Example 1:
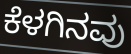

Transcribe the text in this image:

ಕೆಳಗಿನವು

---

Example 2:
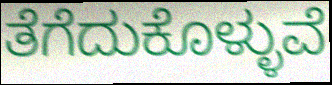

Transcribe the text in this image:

ತೆಗೆದುಕೊಳ್ಳುವೆ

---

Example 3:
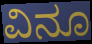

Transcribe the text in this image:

ವಿನೂ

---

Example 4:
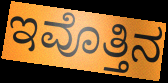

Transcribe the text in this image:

ಇವೊತ್ತಿನ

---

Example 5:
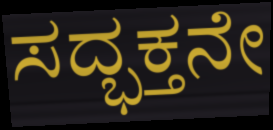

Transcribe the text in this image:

ಸದ್ಭಕ್ತನೇ